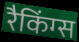
रैकिंग्स